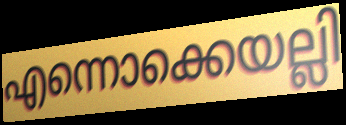
എന്നൊക്കെയല്ലി